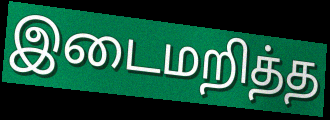
இடைமறித்த